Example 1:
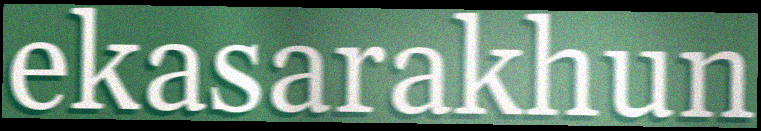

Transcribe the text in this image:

ekasarakhun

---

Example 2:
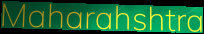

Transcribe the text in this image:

Maharahshtra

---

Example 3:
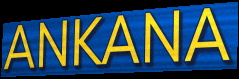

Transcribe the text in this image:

ANKANA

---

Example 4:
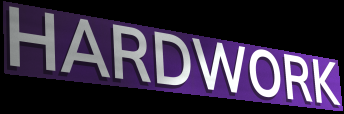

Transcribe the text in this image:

HARDWORK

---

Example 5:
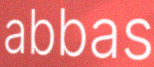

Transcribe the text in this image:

abbas